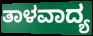
ತಾಳವಾದ್ಯ